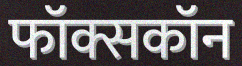
फॉक्सकॉन